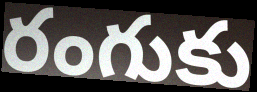
రంగుకు